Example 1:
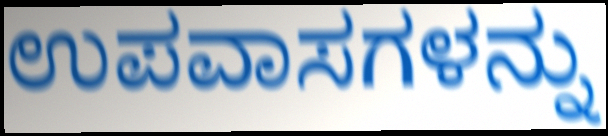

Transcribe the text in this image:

ಉಪವಾಸಗಳನ್ನು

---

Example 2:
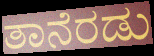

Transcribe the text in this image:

ತಾನೆರಡು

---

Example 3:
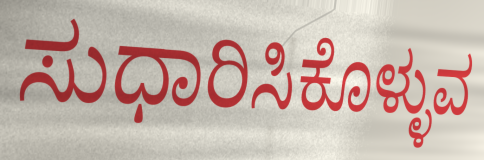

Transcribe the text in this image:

ಸುಧಾರಿಸಿಕೊಳ್ಳುವ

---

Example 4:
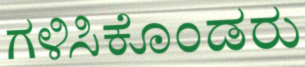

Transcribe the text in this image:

ಗಳಿಸಿಕೊಂಡರು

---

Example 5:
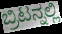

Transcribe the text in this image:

ಬ್ರಿಟನ್ನಲ್ಲಿ